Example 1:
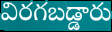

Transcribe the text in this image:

విరగబడ్డారు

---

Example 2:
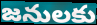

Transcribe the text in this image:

జనులకు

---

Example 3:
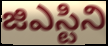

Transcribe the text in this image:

జిఎస్టిని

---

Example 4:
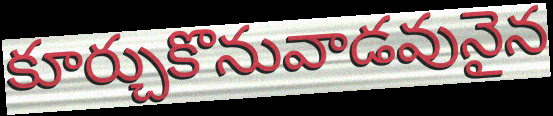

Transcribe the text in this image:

కూర్చుకొనువాడవునైన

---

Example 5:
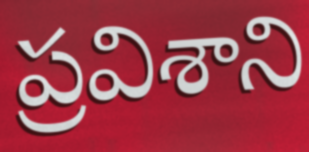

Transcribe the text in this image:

ప్రవిశాని